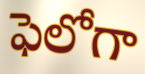
ఫెలోగా